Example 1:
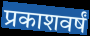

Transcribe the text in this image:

प्रकाशवर्षं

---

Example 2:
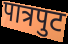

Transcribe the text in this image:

पात्रपुट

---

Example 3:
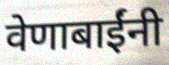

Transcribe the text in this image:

वेणाबाईंनी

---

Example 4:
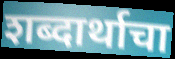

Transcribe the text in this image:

शब्दार्थाचा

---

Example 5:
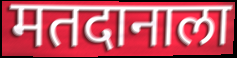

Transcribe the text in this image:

मतदानाला